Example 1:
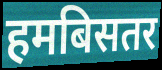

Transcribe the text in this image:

हमबिसतर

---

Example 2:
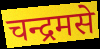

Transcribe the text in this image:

चन्द्रमसे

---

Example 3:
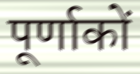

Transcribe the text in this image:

पूर्णाकों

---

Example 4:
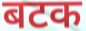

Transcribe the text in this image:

बटक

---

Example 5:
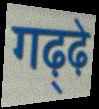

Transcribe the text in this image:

गढ़्ढ़े